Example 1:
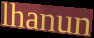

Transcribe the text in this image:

lhanun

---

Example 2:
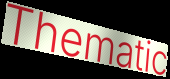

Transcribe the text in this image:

Thematic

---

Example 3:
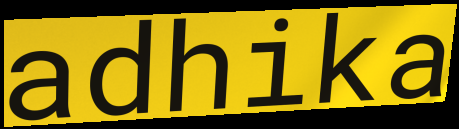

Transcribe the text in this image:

adhika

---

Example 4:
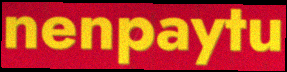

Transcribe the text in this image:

nenpaytu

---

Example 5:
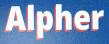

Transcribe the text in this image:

Alpher